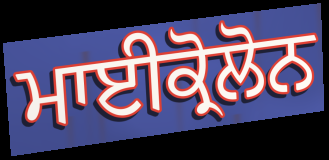
ਮਾਈਕ੍ਰੋਲੋਨ